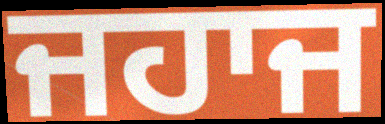
ਜਹਾਜ